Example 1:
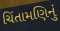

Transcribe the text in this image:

ચિંતામણિનું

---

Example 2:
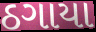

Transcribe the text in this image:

ઠગાયા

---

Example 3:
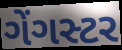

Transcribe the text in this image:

ગેંગસ્ટર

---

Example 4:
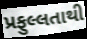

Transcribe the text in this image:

પ્રફુલ્લતાથી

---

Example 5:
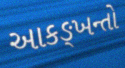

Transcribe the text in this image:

આકઙ્ખન્તો